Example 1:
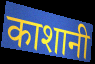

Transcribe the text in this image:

काशानी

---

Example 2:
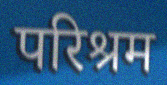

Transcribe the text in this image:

परिश्रम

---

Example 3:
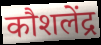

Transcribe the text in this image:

कौशलेंद्र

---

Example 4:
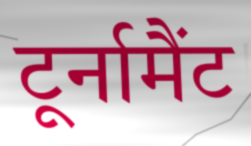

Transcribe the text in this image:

टूर्नामैंट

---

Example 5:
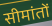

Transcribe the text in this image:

सीमांतों